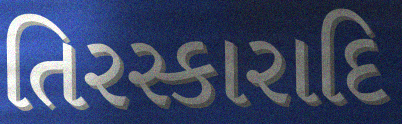
તિરસ્કારાદિ